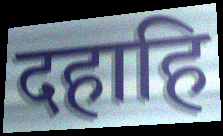
दहाहि